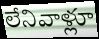
లేనివాళ్లూ